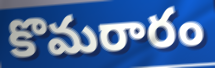
కొమరారం